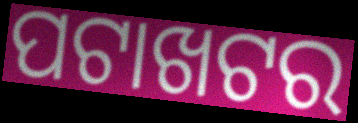
ପଟାଖଟର